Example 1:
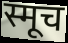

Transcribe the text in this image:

स्मूच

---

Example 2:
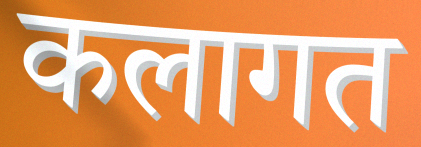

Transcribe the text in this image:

कलागत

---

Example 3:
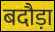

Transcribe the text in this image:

बदौड़ा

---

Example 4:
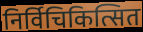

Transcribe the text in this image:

निर्विचिकित्सित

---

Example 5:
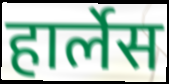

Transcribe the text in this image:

हार्लेस